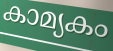
കാമ്യകം